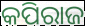
କପିରାଜ